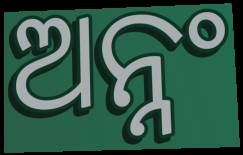
ଅନ୍ନଂ